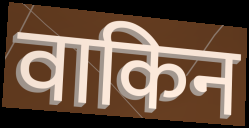
वाकिन